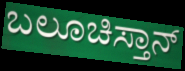
ಬಲೂಚಿಸ್ತಾನ್